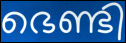
ഭെണ്ടി